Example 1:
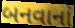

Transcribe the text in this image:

બનવાનાં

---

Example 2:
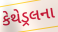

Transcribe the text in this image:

કેથેડ્રલના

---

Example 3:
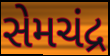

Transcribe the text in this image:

સેમચંદ્ર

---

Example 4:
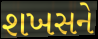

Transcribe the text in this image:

શખસને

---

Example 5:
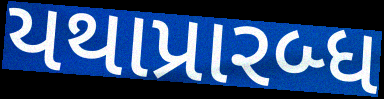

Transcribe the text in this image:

યથાપ્રારબ્ધ